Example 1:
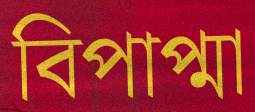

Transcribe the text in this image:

বিপাপ্মা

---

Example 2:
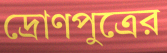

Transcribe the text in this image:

দ্রোণপুত্রের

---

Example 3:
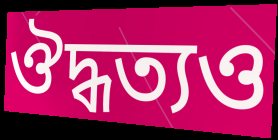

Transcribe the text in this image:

ঔদ্ধত্যও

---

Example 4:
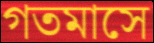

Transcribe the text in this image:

গতমাসে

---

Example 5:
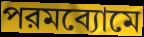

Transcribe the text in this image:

পরমব্যোমে